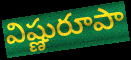
విష్ణురూపా